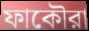
ফাকৌরা